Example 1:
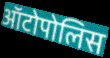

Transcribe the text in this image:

ऑटोपोलिस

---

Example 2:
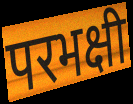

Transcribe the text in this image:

परभक्षी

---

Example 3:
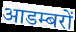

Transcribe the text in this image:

आडम्बरों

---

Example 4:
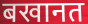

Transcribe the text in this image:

बखानत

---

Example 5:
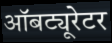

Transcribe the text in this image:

ऑबट्यूरेटर